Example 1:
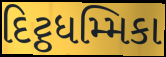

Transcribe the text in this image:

દિટ્ઠધમ્મિકા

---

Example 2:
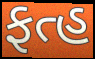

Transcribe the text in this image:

ફત્હ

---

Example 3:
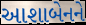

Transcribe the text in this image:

આશાબેનને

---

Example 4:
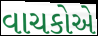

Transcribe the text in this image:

વાચકોએ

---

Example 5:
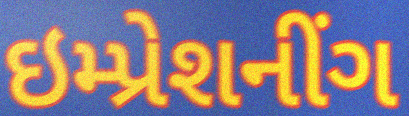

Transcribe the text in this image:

ઇમ્પ્રેશનીંગ